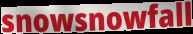
snowsnowfall